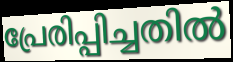
പ്രേരിപ്പിച്ചതിൽ